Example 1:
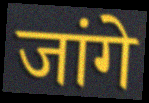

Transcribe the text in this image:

जांगे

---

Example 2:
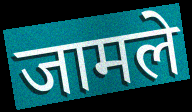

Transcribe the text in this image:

जामले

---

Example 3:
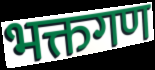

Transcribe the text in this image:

भक्तगण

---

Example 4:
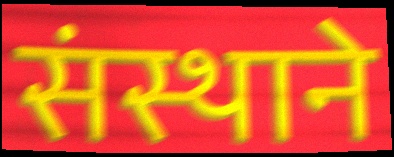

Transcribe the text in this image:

संस्थाने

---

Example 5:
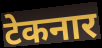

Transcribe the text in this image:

टेकनार